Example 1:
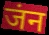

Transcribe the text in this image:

जंन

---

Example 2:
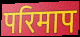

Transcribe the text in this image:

परिमाप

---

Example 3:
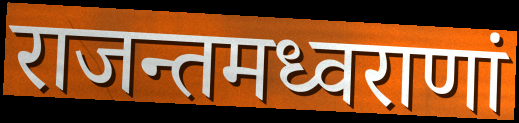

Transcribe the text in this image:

राजन्तमध्वराणां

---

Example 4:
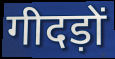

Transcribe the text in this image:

गीदड़ों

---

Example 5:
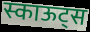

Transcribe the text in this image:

स्काऊट्स